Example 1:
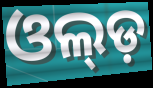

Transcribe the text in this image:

ଓଲ୍ଡ଼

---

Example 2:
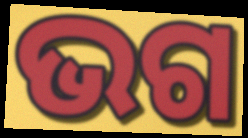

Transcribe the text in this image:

ଭଗ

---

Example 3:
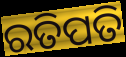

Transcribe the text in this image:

ରତିପତି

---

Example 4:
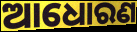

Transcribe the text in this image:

ଆଧୋରଣ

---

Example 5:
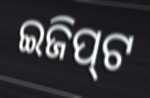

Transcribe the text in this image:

ଇଜିପ୍‌ଟ